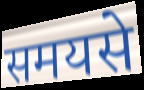
समयसे